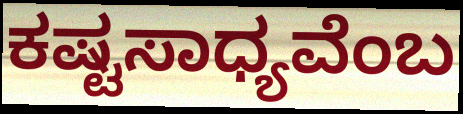
ಕಷ್ಟಸಾಧ್ಯವೆಂಬ